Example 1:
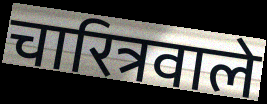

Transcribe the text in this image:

चारित्रवाले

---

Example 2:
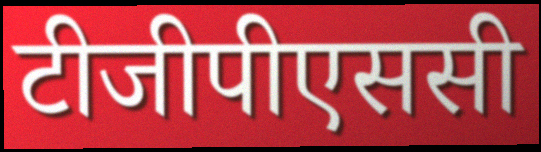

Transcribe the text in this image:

टीजीपीएससी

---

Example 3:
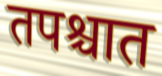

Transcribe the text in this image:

तपश्चात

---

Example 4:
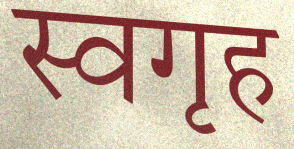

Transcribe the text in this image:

स्वगृह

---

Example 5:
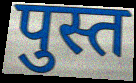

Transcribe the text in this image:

पुस्त